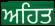
ਅਹਿਤ